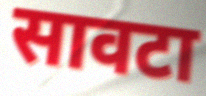
सावटा